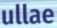
ullae